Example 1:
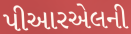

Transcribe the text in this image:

પીઆરએલની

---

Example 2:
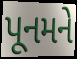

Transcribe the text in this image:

પૂનમને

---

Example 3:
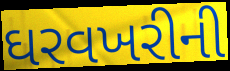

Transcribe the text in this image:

ઘરવખરીની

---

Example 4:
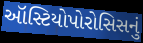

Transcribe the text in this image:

ઑસ્ટિયોપોરોસિસનું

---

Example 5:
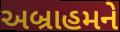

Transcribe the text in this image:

અબ્રાહમને